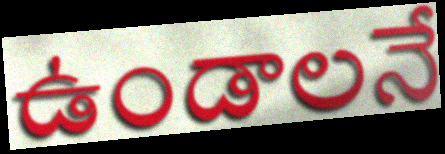
ఉండాలనే